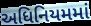
અધિનિયમમાં